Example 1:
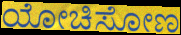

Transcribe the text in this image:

ಯೋಚಿಸೋಣ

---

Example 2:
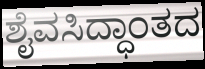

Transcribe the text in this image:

ಶೈವಸಿದ್ಧಾಂತದ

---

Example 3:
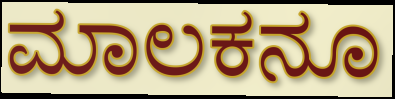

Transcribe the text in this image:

ಮಾಲಕನೂ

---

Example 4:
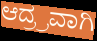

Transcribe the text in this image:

ಆದ್ರ್ರವಾಗಿ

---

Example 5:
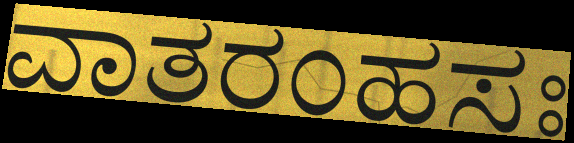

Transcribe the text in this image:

ವಾತರಂಹಸಃ